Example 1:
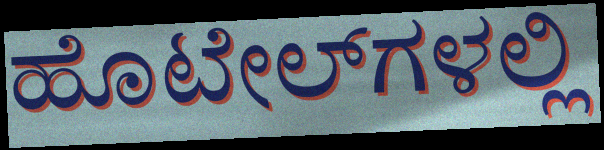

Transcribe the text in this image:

ಹೊಟೇಲ್‌ಗಳಲ್ಲಿ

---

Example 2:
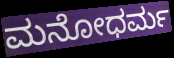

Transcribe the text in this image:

ಮನೋಧರ್ಮ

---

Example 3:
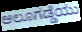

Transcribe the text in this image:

ಆಲೂಗಡ್ಡೆಯು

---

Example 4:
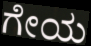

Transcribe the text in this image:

ಗೇಯ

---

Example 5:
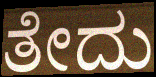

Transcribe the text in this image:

ತೇದು